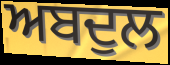
ਅਬਦੁਲ